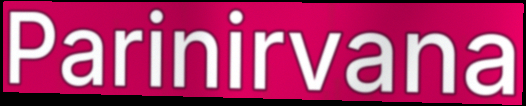
Parinirvana